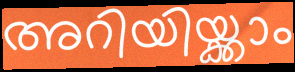
അറിയിയ്ക്കാം